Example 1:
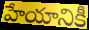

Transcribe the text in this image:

హేయానికీ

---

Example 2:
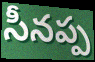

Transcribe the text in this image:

సీనప్ప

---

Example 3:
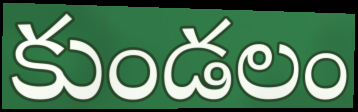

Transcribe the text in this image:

కుండలం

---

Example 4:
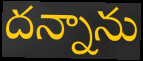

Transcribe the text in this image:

దన్నాను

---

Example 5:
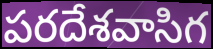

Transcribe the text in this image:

పరదేశవాసిగ